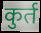
कुर्त